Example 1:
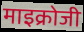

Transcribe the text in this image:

माइक्रोजी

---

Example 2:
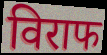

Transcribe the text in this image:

विराफ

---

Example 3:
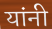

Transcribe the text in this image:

यांनी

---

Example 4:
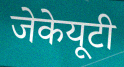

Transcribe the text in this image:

जेकेयूटी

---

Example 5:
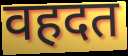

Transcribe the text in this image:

वहदत